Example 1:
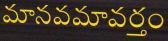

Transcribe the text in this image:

మానవమావర్తం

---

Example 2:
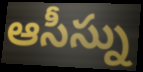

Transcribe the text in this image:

ఆసీస్ను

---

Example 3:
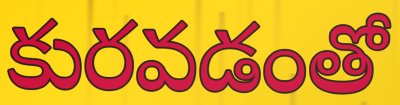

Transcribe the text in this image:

కురవడంతో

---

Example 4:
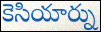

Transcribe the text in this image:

కెసియార్ను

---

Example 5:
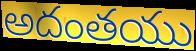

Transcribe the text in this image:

అదంతయు